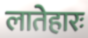
लातेहारः